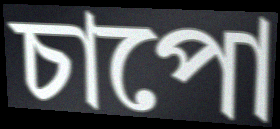
চাপো